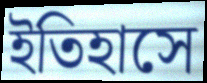
ইতিহাসে